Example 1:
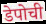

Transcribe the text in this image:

डेपोची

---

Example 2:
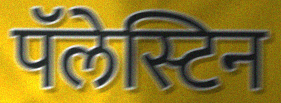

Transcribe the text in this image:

पॅलेस्टिन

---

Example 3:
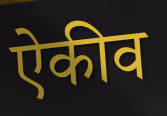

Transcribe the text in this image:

ऐकीव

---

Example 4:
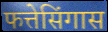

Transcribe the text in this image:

फत्तेसिंगास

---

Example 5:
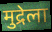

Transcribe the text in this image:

मुद्रेला